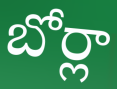
బోర్లా